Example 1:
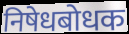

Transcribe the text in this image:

निषेधबोधक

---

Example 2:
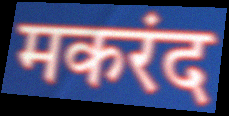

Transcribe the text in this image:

मकरंद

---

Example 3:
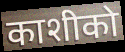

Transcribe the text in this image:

काशीको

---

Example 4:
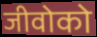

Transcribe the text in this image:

जीवोको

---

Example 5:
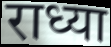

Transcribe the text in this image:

राध्या